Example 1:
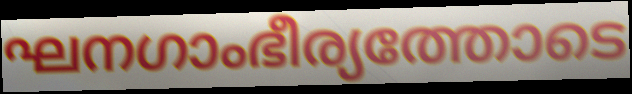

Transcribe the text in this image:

ഘനഗാംഭീര്യത്തോടെ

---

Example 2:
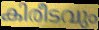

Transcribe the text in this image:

കിരീടവും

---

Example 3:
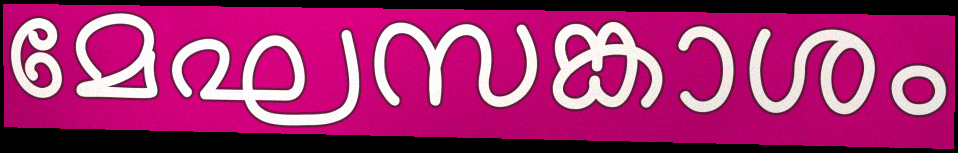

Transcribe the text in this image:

മേഘസങ്കാശം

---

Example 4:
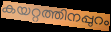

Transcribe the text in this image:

കയറ്റത്തിനപ്പുറം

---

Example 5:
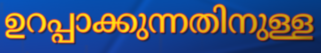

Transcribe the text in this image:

ഉറപ്പാക്കുന്നതിനുള്ള